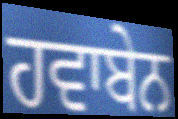
ਹਵਾਬੇਨ